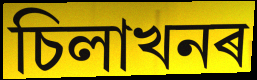
চিলাখনৰ